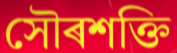
সৌৰশক্তি